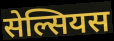
सेल्सियस